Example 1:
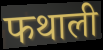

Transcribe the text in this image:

फथाली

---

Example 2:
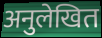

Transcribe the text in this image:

अनुलेखित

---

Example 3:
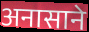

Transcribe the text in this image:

अनासाने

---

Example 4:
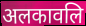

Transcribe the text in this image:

अलकावलि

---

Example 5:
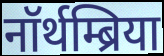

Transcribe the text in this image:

नॉर्थम्ब्रिया